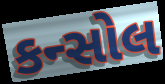
કન્સોલ